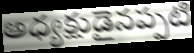
అధ్యక్షుడైనప్పటి